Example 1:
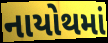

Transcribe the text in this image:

નાયોથમાં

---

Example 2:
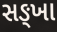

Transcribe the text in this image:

સઙ્ખા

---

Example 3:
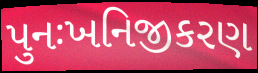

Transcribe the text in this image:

પુનઃખનિજીકરણ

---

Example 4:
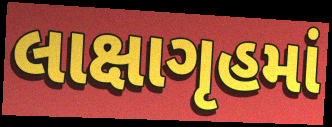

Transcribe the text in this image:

લાક્ષાગૃહમાં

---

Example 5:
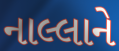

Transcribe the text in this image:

નાલ્લાને